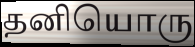
தனியொரு